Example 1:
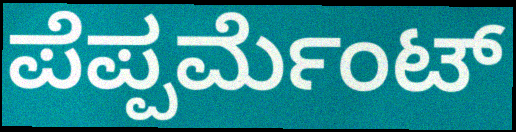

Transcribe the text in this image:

ಪೆಪ್ಪರ್ಮೆಂಟ್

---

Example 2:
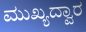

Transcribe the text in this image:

ಮುಖ್ಯದ್ವಾರ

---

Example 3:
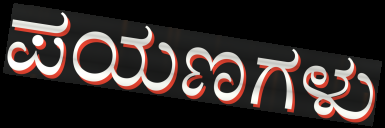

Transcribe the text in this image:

ಪಯಣಗಳು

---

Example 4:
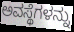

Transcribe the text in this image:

ಅವಸ್ಥೆಗಳನ್ನು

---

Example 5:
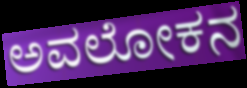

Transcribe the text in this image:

ಅವಲೋಕನ